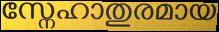
സ്നേഹാതുരമായ